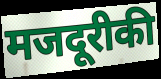
मजदूरीकी